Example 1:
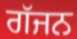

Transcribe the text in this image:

ਗੱਜਨ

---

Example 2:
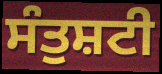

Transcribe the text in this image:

ਸੰਤੁਸ਼ਟੀ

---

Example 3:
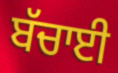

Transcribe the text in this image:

ਬੱਚਾਈ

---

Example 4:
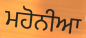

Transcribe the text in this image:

ਮਹੋਨੀਆ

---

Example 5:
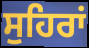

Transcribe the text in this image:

ਸੁਹਿਰਾਂ